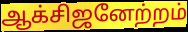
ஆக்சிஜனேற்றம்